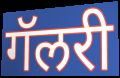
गॅलरी